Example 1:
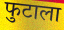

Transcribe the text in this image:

फुटाला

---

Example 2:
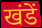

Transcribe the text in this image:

खंडें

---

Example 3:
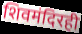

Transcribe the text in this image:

शिवमंदिरही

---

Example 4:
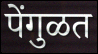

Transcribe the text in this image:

पेंगुळत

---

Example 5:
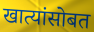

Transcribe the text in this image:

खात्यांसोबत